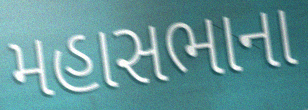
મહાસભાના